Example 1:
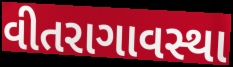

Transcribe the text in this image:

વીતરાગાવસ્થા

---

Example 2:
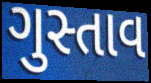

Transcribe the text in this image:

ગુસ્તાવ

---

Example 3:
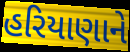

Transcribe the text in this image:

હરિયાણાને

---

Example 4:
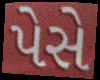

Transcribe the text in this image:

પેસે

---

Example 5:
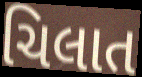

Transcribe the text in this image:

ચિલાત